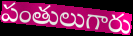
పంతులుగారు